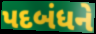
પદબંધને